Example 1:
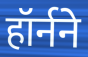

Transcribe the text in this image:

हॉर्नने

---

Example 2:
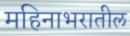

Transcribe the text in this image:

महिनाभरातील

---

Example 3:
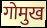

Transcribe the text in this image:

गोमुख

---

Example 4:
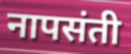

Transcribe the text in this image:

नापसंती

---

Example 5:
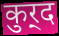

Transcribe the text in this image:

कुर्द